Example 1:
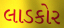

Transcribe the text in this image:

લાડકોર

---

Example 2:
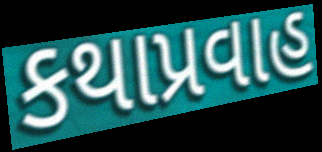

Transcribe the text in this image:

કથાપ્રવાહ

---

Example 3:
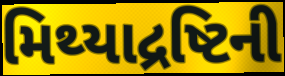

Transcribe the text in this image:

મિથ્યાદ્રષ્ટિની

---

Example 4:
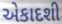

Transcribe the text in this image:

એકાદશી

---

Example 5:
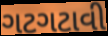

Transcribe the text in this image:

ગટગટાવી